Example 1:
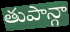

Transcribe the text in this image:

తుపాన్గా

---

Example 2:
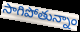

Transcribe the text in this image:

సాగిపోతున్నాం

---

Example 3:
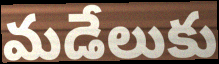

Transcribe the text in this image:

మడేలుకు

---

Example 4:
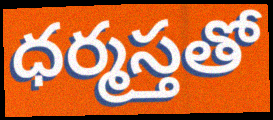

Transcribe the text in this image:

ధర్మస్తతో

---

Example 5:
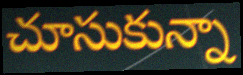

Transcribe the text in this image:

చూసుకున్నా